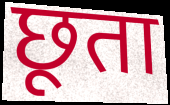
छूता